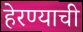
हेरण्याची